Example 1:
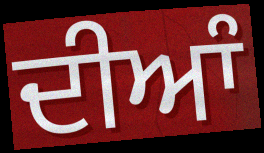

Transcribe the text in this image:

ਦੀਆੰ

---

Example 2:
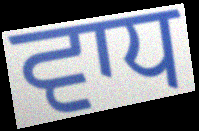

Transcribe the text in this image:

ਵਾਧ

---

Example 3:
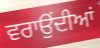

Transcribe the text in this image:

ਵਰਾਉਂਦੀਆਂ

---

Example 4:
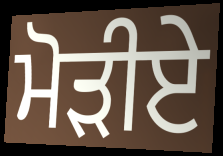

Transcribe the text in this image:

ਮੋੜੀਏ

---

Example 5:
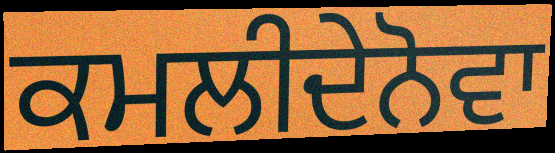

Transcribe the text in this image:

ਕਮਲੀਦੇਨੋਵਾ